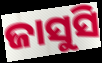
ଜାସୁସି